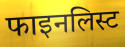
फाइनलिस्ट